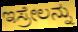
ಇಸ್ರೇಲನ್ನು